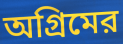
অগ্রিমের